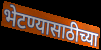
भेटण्यासाठीच्या